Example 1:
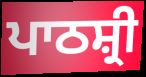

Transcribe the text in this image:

ਪਾਠਸ਼੍ਰੀ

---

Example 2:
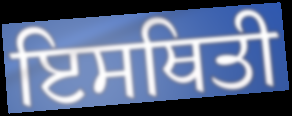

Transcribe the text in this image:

ਇਸਥਿਤੀ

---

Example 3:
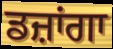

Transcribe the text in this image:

ਡਜ਼ਾਂਗਾ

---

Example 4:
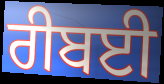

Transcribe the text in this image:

ਰੀਬਈ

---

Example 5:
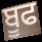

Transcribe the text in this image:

ਬੂਫ